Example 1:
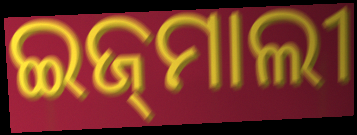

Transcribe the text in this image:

ଇଜ୍‌ମାଲୀ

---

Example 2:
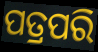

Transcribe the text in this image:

ପତ୍ରପରି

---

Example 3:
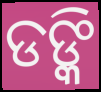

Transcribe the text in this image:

ଡଙ୍କି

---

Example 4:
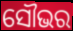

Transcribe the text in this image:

ସୌଭର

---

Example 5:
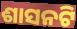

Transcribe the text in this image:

ଶାସନଟି